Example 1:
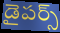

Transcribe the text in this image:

డైపర్స్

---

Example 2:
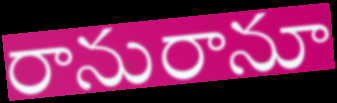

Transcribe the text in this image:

రానురానూ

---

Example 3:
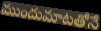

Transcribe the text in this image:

ముందుమాటతోనే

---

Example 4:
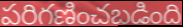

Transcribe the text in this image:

పరిగణించబడింది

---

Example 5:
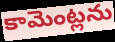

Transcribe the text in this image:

కామెంట్లను